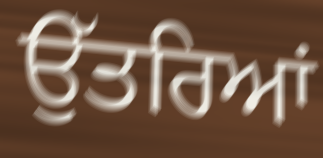
ਉੱਤਰਿਆਂ